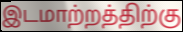
இடமாற்றத்திற்கு